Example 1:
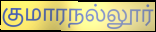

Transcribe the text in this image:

குமாரநல்லூர்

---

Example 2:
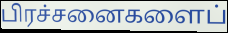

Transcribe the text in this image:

பிரச்சனைகளைப்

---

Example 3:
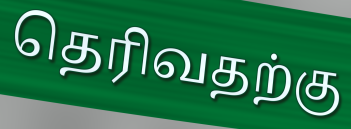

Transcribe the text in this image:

தெரிவதற்கு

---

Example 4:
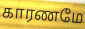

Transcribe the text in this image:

காரணமே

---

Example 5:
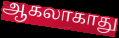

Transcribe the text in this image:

ஆகலாகாது